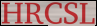
HRCSL